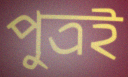
পুত্ৰই